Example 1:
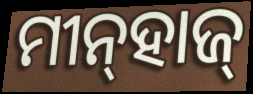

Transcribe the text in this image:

ମୀନ୍‌ହାଜ୍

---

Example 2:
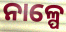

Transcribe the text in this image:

ନାଳ୍ପେ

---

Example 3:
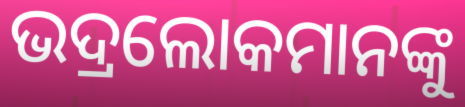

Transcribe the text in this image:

ଭଦ୍ରଲୋକମାନଙ୍କୁ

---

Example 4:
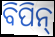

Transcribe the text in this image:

ବିପିନ୍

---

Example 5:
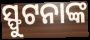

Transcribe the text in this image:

ସ୍ଫୁଟନାଙ୍କ